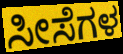
ಸೀಸೆಗಳ